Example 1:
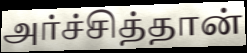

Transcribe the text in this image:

அர்ச்சித்தான்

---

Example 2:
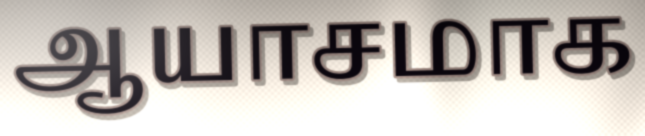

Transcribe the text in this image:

ஆயாசமாக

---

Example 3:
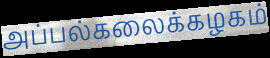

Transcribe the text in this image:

அப்பல்கலைக்கழகம்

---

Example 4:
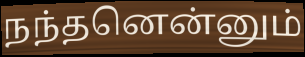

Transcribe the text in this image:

நந்தனென்னும்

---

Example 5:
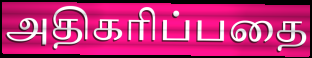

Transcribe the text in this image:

அதிகரிப்பதை